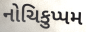
નોચિકુપ્પમ